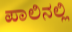
ಪಾಲಿನಲ್ಲಿ